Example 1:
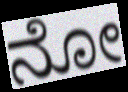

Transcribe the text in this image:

ನೋ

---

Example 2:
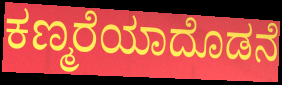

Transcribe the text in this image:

ಕಣ್ಮರೆಯಾದೊಡನೆ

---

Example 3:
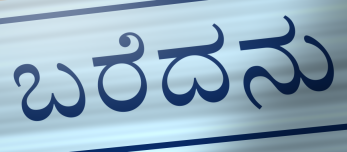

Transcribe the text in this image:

ಬರೆದನು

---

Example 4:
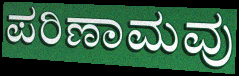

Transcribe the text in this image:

ಪರಿಣಾಮವು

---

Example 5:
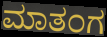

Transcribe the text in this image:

ಮಾತಂಗ